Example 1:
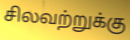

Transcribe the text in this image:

சிலவற்றுக்கு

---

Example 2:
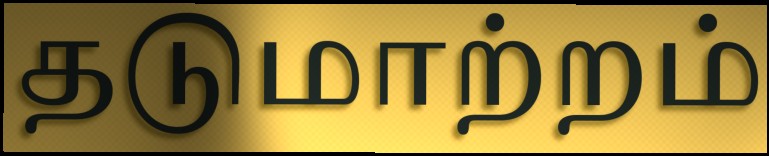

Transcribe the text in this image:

தடுமாற்றம்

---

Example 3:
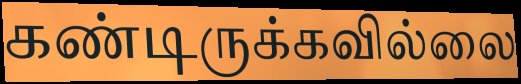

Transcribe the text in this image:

கண்டிருக்கவில்லை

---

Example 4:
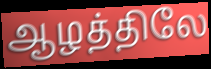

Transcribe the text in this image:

ஆழத்திலே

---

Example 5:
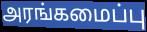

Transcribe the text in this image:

அரங்கமைப்பு